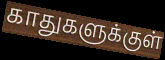
காதுகளுக்குள்